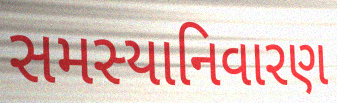
સમસ્યાનિવારણ